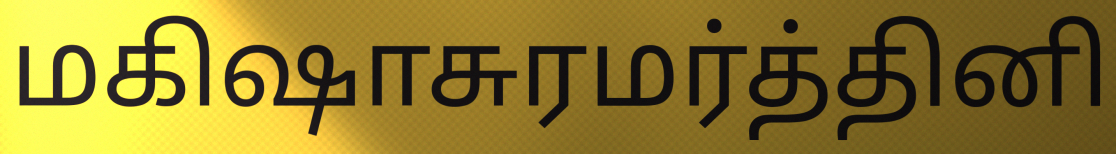
மகிஷாசுரமர்த்தினி